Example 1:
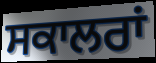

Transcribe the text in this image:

ਸਕਾਲਰਾਂ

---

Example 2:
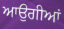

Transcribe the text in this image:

ਆਉਗੀਆਂ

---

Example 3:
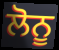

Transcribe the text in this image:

ਲੋਨੂ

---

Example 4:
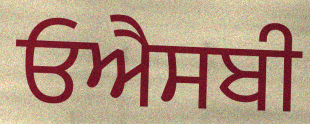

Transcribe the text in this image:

ਓਐਸਬੀ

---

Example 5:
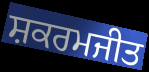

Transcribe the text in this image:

ਸ਼ਕਰਮਜੀਤ